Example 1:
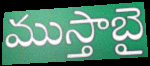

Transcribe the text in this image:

ముస్తాబై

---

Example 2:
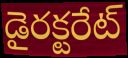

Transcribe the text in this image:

డైరక్టరేట్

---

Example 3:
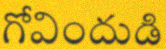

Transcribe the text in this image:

గోవిందుడి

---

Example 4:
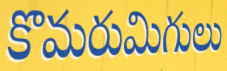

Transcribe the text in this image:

కొమరుమిగులు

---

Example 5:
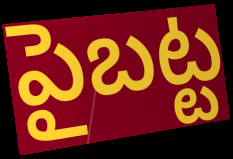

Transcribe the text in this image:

పైబట్ట